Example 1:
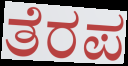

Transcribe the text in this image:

ತೆರಪ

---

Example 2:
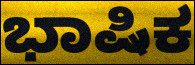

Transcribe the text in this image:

ಭಾಷಿಕ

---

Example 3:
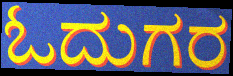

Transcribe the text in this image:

ಓದುಗರ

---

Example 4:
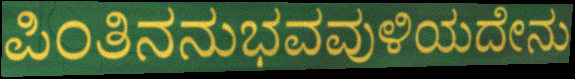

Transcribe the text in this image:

ಪಿಂತಿನನುಭವವುಳಿಯದೇನು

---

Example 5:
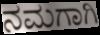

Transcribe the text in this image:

ನಮಗಾಗಿ